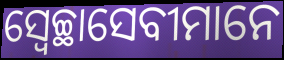
ସ୍ୱେଚ୍ଛାସେବୀମାନେ